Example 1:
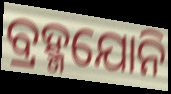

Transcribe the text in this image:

ବ୍ରହ୍ମଯୋନି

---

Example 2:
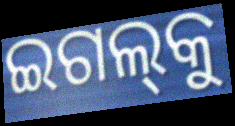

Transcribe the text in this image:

ଇଗଲ୍‌କୁ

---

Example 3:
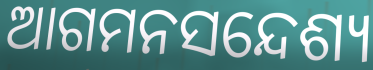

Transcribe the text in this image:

ଆଗମନସନ୍ଦେଶ୍ୟ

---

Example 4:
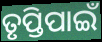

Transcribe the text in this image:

ତୃପ୍ତିପାଇଁ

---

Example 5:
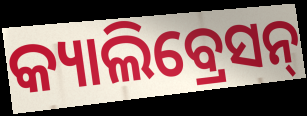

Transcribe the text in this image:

କ୍ୟାଲିବ୍ରେସନ୍